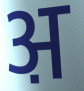
अ़